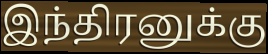
இந்திரனுக்கு